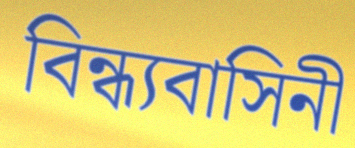
বিন্ধ্যবাসিনী